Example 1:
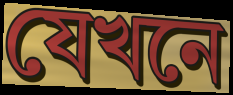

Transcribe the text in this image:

যেখনে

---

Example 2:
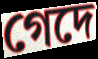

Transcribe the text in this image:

গেদে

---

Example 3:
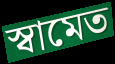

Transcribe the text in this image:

স্বামেত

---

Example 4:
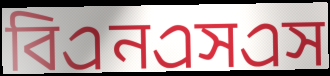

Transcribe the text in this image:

বিএনএসএস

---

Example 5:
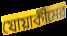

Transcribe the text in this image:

যোয়াকীমের